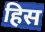
हिस